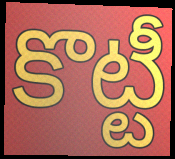
కొట్టీ